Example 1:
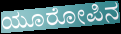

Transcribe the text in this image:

ಯೂರೋಪಿನ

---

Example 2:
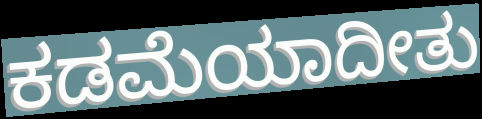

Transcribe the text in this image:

ಕಡಮೆಯಾದೀತು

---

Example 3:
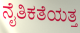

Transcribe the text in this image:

ನೈತಿಕತೆಯತ್ತ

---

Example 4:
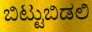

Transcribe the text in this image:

ಬಿಟ್ಟುಬಿಡಲಿ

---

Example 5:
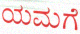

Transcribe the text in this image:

ಯಮಗೆ